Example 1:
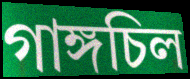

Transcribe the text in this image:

গাঙ্গচিল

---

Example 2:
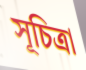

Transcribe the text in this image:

সূচিত্রা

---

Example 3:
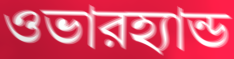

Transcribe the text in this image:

ওভারহ্যান্ড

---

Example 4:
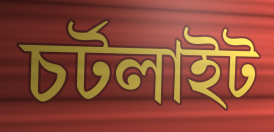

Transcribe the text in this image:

চর্টলাইট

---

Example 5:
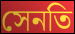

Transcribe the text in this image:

সেনতি